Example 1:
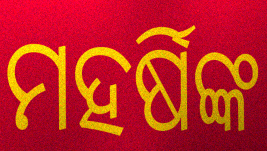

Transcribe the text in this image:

ମହର୍ଷିଙ୍କ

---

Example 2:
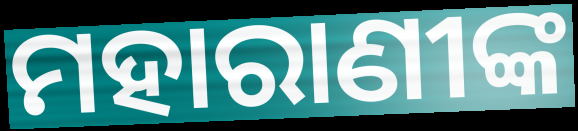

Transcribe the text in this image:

ମହାରାଣୀଙ୍କ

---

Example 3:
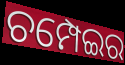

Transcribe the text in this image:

ଚମ୍ପେଇର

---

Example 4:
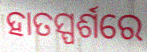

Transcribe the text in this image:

ହାତସ୍ପର୍ଶରେ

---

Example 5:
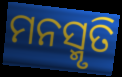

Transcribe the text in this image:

ମନସ୍ମୃତି